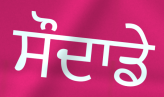
ਸੌਦਾਡੇ